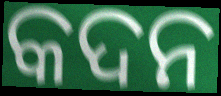
କଦନ